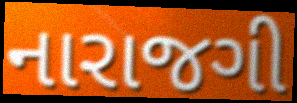
નારાજગી